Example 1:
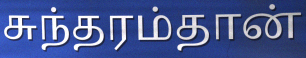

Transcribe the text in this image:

சுந்தரம்தான்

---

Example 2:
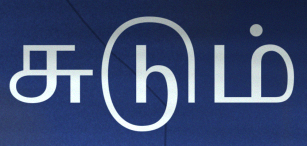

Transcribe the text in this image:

சுடும்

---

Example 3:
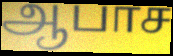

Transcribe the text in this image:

ஆபாச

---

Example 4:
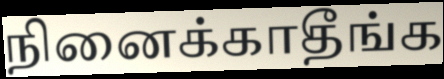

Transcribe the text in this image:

நினைக்காதீங்க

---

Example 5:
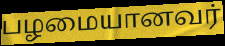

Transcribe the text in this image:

பழமையானவர்